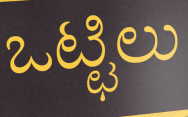
ಒಟ್ಟಿಲು